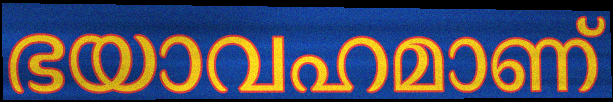
ഭയാവഹമാണ്